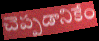
చెప్పడానికేం